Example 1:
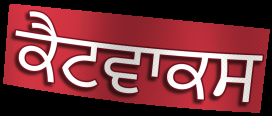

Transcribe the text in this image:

ਕੈਟਵਾਕਸ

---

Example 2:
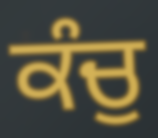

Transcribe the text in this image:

ਕੰਚੁ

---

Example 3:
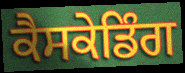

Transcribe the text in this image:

ਕੈਸਕੇਡਿੰਗ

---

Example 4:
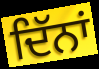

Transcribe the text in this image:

ਦਿੱਨਾਂ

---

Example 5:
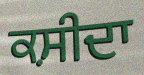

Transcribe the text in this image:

ਕ਼ਸੀਦਾ